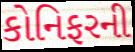
કોનિફરની